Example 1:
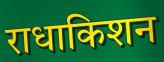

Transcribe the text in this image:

राधाकिशन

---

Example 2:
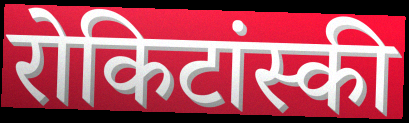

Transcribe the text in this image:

रोकिटांस्की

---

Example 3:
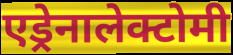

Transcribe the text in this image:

एड्रेनालेक्टोमी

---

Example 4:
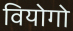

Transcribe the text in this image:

वियोगो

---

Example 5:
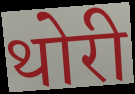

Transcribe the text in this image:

थोरी